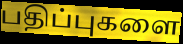
பதிப்புகளை